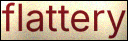
flattery